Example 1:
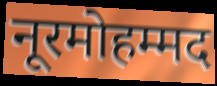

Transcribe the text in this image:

नूरमोहम्मद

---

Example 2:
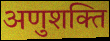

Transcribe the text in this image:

अणुशक्ति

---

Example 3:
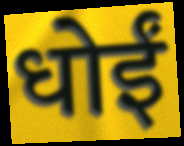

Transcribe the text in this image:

धोईं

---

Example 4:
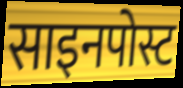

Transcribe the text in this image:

साइनपोस्ट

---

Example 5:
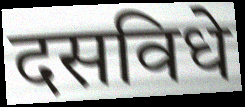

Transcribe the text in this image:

दसविधे